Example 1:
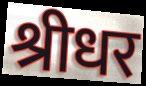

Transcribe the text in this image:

श्रीधर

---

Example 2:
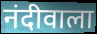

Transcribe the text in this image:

नंदीवाला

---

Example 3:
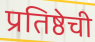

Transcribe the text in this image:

प्रतिष्ठेची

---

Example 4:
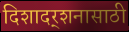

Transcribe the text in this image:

दिशादर्शनासाठी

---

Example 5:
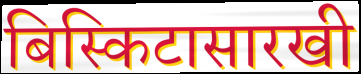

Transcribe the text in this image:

बिस्किटासारखी